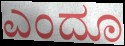
ಎಂದೂ